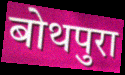
बोथपुरा